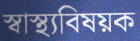
স্বাস্থ্যবিষয়ক